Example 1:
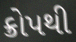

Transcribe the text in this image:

ક્રોપથી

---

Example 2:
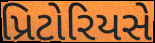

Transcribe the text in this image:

પ્રિટોરિયસે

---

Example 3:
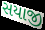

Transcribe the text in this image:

સયાજી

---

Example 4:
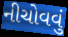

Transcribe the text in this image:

નીચોવવું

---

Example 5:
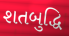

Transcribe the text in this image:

શતબુદ્ધિ